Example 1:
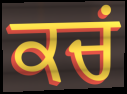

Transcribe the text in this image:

ਕਚਂ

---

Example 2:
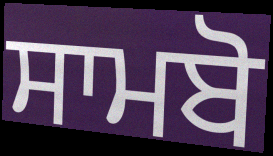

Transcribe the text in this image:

ਸਾਮਬੋ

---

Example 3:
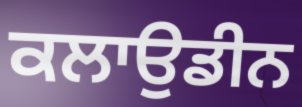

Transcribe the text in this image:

ਕਲਾਉਡੀਨ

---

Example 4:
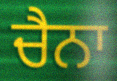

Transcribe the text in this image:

ਚੈਨਾ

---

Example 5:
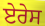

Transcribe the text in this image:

ਏਰੇਸ